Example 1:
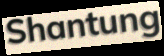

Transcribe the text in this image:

Shantung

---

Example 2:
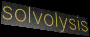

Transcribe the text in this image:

solvolysis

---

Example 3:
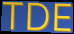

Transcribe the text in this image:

TDE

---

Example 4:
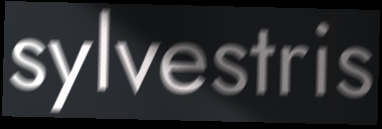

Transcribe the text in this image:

sylvestris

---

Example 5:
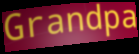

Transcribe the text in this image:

Grandpa